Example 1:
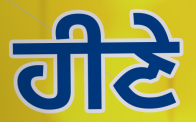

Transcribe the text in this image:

ਹੀਣੇ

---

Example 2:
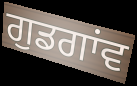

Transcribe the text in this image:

ਗੁਡਗਾਂਵ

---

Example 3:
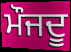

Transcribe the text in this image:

ਮੌਜਦੂ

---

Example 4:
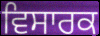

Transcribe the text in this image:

ਵਿਸਾਰਕ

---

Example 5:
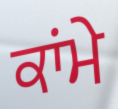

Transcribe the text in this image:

ਕਾਂਮੇ